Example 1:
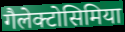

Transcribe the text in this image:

गैलेक्टोसिमिया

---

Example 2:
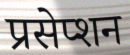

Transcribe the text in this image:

प्रसेप्शन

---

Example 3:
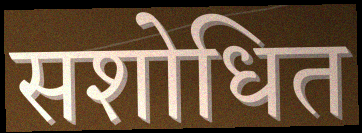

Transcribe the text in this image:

सशोधित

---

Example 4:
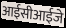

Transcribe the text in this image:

आईसीआईजे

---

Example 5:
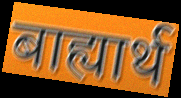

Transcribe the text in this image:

बाह्यार्थ